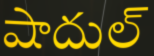
షాదుల్